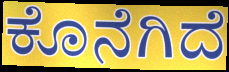
ಕೊನೆಗಿದೆ